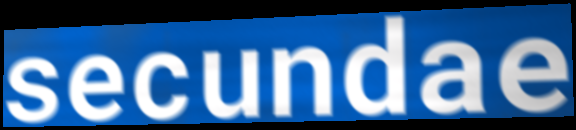
secundae